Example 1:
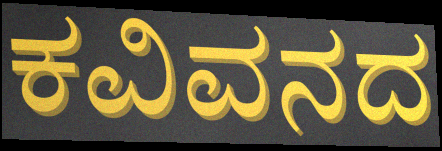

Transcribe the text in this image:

ಕವಿವನದ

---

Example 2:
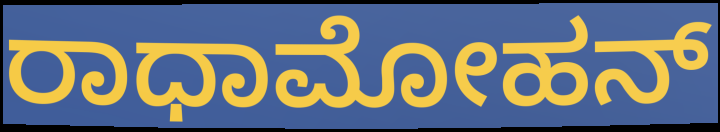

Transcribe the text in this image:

ರಾಧಾಮೋಹನ್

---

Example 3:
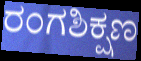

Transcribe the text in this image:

ರಂಗಶಿಕ್ಷಣ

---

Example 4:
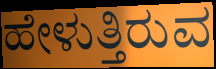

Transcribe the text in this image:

ಹೇಳುತ್ತಿರುವ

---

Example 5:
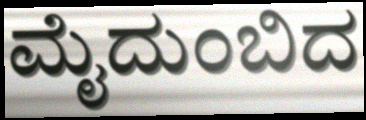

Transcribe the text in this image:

ಮೈದುಂಬಿದ